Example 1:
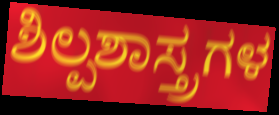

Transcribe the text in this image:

ಶಿಲ್ಪಶಾಸ್ತ್ರಗಳ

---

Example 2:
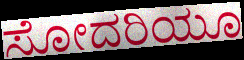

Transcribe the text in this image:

ಸೋದರಿಯೂ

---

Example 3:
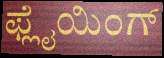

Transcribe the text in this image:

ಫ್ಲೈಯಿಂಗ್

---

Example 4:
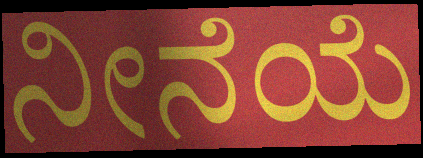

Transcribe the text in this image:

ನೀನೆಯೆ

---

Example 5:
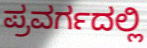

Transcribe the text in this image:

ಪ್ರವರ್ಗದಲ್ಲಿ